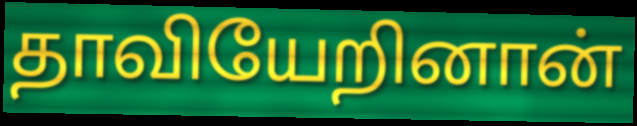
தாவியேறினான்